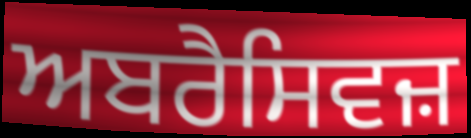
ਅਬਰੈਸਿਵਜ਼